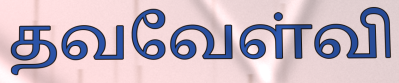
தவவேள்வி